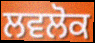
ਲਵਲੋਕ